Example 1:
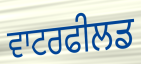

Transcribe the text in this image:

ਵਾਟਰਫੀਲਡ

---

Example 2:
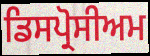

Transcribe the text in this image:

ਡਿਸਪ੍ਰੋਸੀਅਮ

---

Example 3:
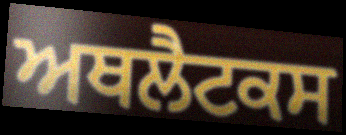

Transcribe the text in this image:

ਅਥਲੈਟਕਸ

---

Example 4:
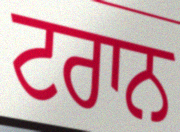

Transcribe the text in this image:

ਟਰਾਨ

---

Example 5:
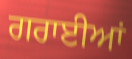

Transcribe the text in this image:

ਗਰਾਈਆਂ